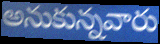
అనుకున్నవారు